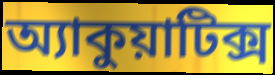
অ্যাকুয়াটিক্স